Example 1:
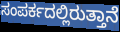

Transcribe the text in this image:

ಸಂಪರ್ಕದಲ್ಲಿರುತ್ತಾನೆ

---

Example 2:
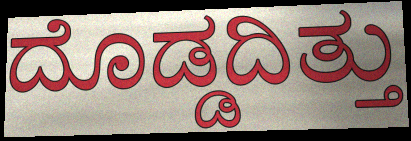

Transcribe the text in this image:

ದೊಡ್ಡದಿತ್ತು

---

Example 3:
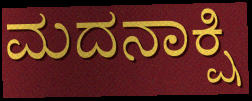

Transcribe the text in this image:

ಮದನಾಕ್ಷಿ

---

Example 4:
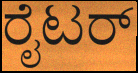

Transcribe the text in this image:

ರೈಟರ್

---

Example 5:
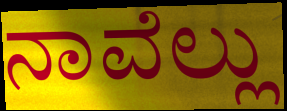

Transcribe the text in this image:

ನಾವೆಲ್ಲು